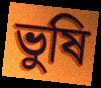
ভুষি